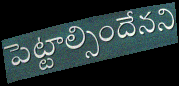
పెట్టాల్సిందేనని